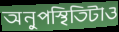
অনুপস্থিতিটাও